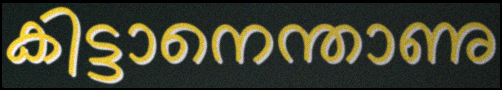
കിട്ടാനെന്താണു